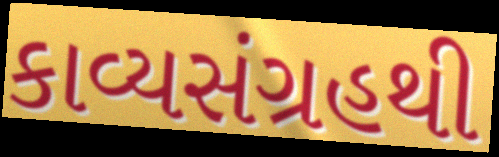
કાવ્યસંગ્રહથી